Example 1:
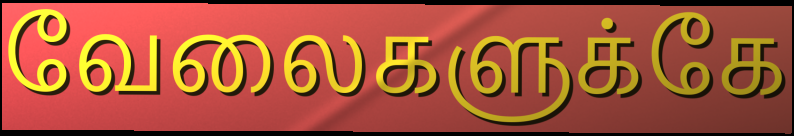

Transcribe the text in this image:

வேலைகளுக்கே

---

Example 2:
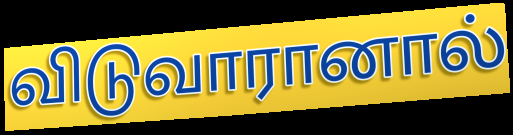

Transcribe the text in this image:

விடுவாரானால்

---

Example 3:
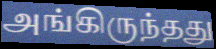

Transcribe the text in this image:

அங்கிருந்தது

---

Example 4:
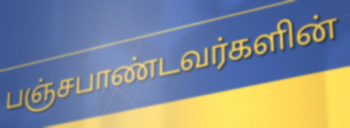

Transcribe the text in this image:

பஞ்சபாண்டவர்களின்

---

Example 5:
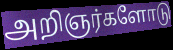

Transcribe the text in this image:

அறிஞர்களோடு